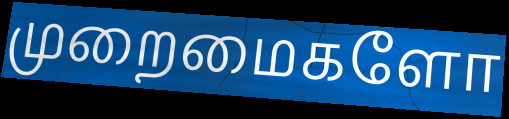
முறைமைகளோ